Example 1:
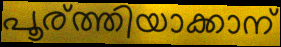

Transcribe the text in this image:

പൂര്ത്തിയാക്കാന്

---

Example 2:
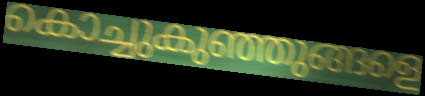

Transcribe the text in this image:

കൊച്ചുകുഞ്ഞുങ്ങളെ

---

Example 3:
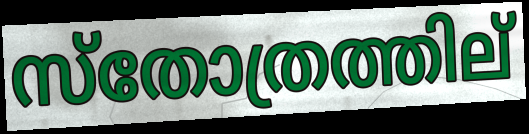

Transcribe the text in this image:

സ്തോത്രത്തില്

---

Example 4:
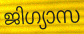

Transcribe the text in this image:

ജിഗ്യാസ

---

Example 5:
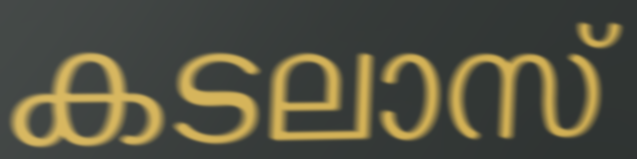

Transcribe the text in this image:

കടലാസ്